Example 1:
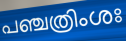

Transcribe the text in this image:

പഞ്ചത്രിംശഃ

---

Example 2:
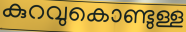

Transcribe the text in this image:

കുറവുകൊണ്ടുള്ള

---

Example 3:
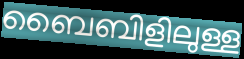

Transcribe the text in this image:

ബൈബിളിലുള്ള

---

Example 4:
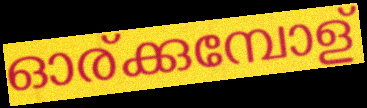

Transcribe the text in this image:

ഓര്ക്കുമ്പോള്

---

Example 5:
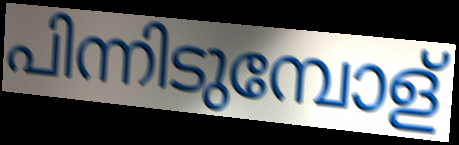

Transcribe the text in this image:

പിന്നിടുമ്പോള്